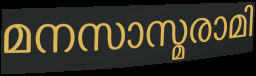
മനസാസ്മരാമി